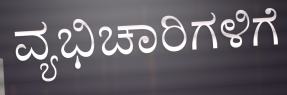
ವ್ಯಭಿಚಾರಿಗಳಿಗೆ